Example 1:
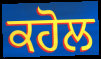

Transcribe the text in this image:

ਕਹੋਲ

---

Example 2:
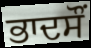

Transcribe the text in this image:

ਭਾਦਸੌਂ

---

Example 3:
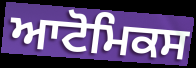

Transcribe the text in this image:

ਆਟੋਮਿਕਸ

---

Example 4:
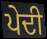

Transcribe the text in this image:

ਪੇਦੀ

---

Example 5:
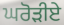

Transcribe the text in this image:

ਘਰੋੜੀਏ